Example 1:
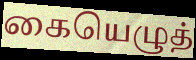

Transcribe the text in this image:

கையெழுத்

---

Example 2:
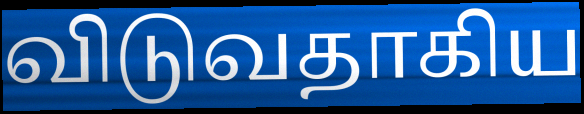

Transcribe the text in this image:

விடுவதாகிய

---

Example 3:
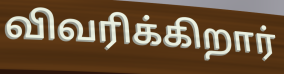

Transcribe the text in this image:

விவரிக்கிறார்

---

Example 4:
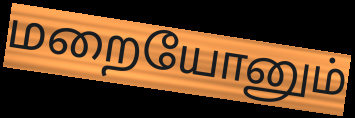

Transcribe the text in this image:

மறையோனும்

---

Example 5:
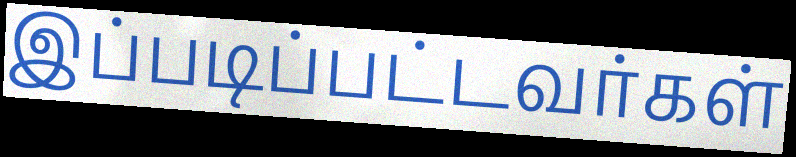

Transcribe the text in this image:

இப்படிப்பட்டவர்கள்